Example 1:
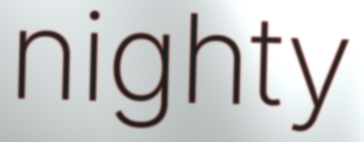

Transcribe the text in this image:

nighty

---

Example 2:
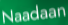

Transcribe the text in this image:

Naadaan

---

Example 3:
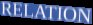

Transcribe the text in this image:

RELATION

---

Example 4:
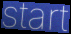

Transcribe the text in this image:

start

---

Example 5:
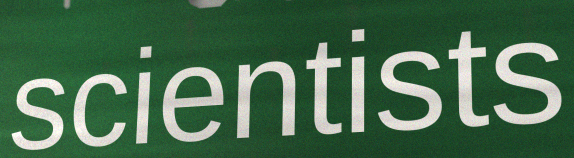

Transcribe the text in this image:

scientists